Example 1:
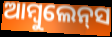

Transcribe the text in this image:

ଆମ୍ବୁଲେନ୍‍ସ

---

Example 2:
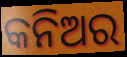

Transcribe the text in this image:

କନିଅର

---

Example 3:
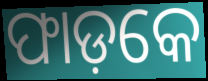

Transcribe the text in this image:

ଫାଡ଼କେ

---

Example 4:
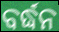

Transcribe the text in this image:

ବର୍ଦ୍ଧନ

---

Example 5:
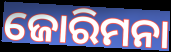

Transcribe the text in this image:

ଜୋରିମନା